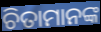
ଚିତାମାନଙ୍କ